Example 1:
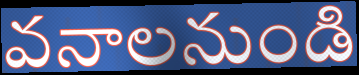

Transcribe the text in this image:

వనాలనుండి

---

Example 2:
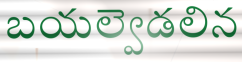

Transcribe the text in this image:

బయల్వెడలిన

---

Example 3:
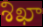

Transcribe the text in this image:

శిఖా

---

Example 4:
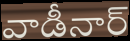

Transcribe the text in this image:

వాడీనార్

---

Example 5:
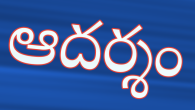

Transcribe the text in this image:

ఆదర్శం